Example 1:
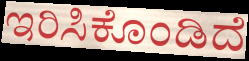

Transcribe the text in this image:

ಇರಿಸಿಕೊಂಡಿದೆ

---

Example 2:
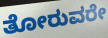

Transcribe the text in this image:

ತೋರುವರೇ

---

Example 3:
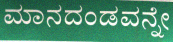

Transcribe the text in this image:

ಮಾನದಂಡವನ್ನೇ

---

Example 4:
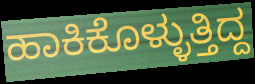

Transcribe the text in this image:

ಹಾಕಿಕೊಳ್ಳುತ್ತಿದ್ದ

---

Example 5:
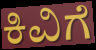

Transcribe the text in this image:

ಕಿವಿಗೆ